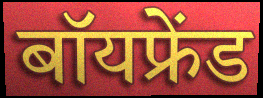
बॉयफ्रेंड